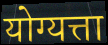
योग्यत्ता